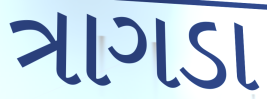
ત્રાગડા